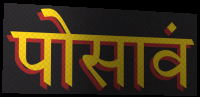
पोसावं